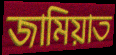
জামিয়াত